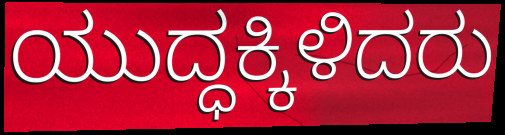
ಯುದ್ಧಕ್ಕಿಳಿದರು